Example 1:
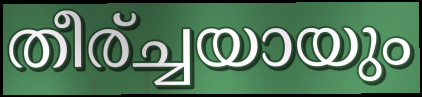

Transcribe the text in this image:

തീര്ച്ചയായും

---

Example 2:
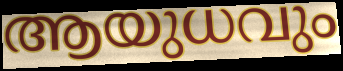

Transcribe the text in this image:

ആയുധവും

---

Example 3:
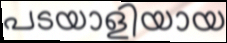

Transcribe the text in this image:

പടയാളിയായ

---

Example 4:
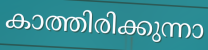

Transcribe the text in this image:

കാത്തിരിക്കുന്നാ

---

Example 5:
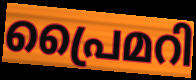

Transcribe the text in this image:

പ്രൈമറി